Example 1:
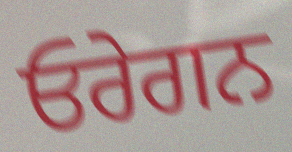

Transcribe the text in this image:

ਓਰੇਗਨ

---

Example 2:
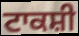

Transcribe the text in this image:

ਟਾਕਸ਼ੀ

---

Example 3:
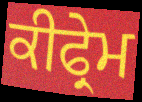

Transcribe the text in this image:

ਕੀਫ੍ਰੇਮ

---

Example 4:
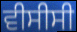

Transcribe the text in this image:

ਵੀਸੀਸੀ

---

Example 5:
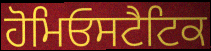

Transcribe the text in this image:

ਹੋਮਿਓਸਟੈਟਿਕ